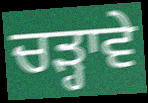
ਚੜ੍ਹਾਵੇ